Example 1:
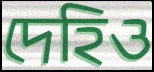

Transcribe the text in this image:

দেহিও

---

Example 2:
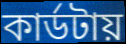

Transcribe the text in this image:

কার্ডটায়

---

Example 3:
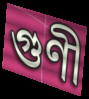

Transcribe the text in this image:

গুণী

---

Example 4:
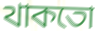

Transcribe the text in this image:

থাকতো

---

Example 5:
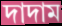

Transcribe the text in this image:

দাদাম